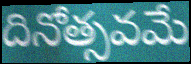
దినోత్సవమే